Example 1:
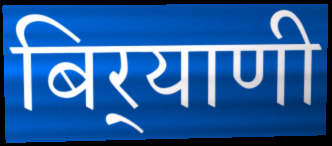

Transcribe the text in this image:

बिर्याणी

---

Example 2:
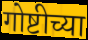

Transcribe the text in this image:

गोष्टीच्या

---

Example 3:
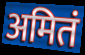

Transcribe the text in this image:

अमितं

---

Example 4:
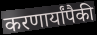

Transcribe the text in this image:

करणार्यांपैकी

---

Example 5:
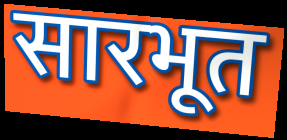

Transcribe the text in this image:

सारभूत